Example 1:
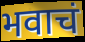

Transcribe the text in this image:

भवाचं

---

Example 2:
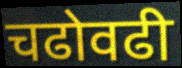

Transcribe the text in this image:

चढोवढी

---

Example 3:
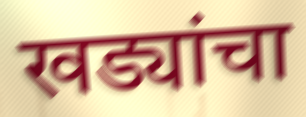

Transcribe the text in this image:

खड्यांचा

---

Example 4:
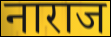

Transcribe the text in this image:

नाराज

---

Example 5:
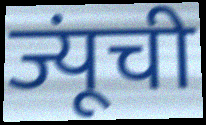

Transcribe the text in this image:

ज्यूंची